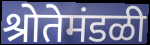
श्रोतेमंडळी